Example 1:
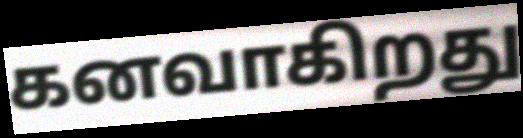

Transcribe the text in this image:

கனவாகிறது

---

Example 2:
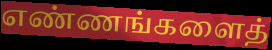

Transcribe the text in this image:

எண்ணங்களைத்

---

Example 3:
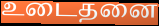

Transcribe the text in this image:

உடைதனை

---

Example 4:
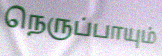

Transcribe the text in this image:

நெருப்பாயும்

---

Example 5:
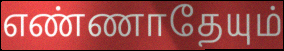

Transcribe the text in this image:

எண்ணாதேயும்